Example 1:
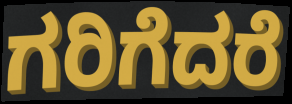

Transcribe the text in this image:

ಗರಿಗೆದರೆ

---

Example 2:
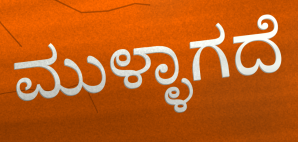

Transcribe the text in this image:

ಮುಳ್ಳಾಗದೆ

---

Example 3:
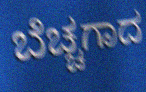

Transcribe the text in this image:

ಬೆಚ್ಚಗಾದ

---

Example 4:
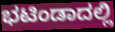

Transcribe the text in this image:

ಭಟಿಂಡಾದಲ್ಲಿ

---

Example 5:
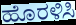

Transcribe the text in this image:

ಹೊರಳಿಸಿ